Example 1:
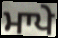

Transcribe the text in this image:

ਮਾਪੇ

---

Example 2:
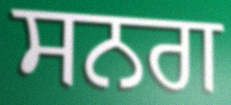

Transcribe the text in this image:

ਸਨਗ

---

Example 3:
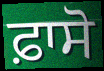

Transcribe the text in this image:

ਫ਼ਾਸੋ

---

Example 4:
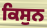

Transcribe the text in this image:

ਕਿਸੁਨ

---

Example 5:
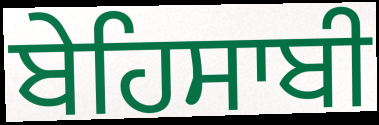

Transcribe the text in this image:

ਬੇਹਿਸਾਬੀ